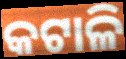
କଟାଳି